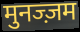
मुनज्ज़म